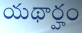
యథార్హం